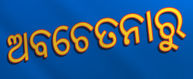
ଅବଚେତନାରୁ